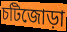
চটিজোড়া